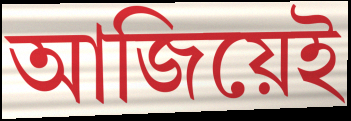
আজিয়েই